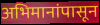
अभिमानांपासून